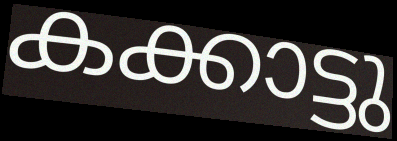
കക്കാട്ടു